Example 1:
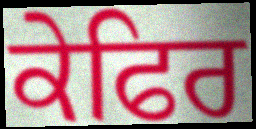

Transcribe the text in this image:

ਕੇਫਿਰ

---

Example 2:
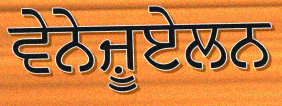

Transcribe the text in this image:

ਵੇਨੇਜ਼ੂਏਲਨ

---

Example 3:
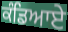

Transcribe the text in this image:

ਕੰਡਿਆਏ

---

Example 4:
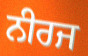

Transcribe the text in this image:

ਨੀਰਜ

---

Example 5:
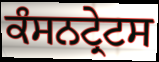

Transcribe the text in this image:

ਕੰਸਨਟ੍ਰੇਟਸ